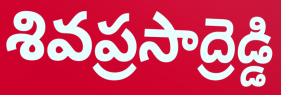
శివప్రసాద్రెడ్డి